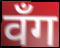
वँग